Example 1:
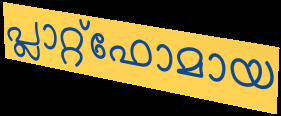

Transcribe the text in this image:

പ്ലാറ്റ്ഫോമായ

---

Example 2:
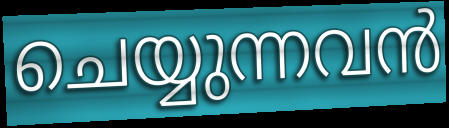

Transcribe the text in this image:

ചെയ്യുന്നവൻ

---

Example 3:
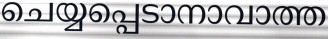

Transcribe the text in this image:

ചെയ്യപ്പെടാനാവാത്ത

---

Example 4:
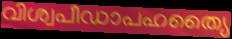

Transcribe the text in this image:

വിശ്വപീഡാപഹത്യൈ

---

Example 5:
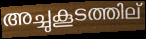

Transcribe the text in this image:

അച്ചുകൂടത്തില്